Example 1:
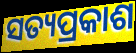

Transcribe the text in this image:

ସତ୍ୟପ୍ରକାଶ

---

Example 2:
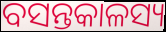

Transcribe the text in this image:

ବସନ୍ତକାଳସ୍ୟ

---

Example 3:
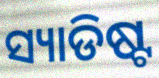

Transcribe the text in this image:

ସ୍ୟାଡିଷ୍ଟ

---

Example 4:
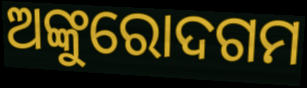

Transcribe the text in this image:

ଅଙ୍କୁରୋଦଗମ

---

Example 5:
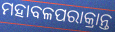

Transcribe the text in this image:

ମହାବଳପରାକ୍ରାନ୍ତ